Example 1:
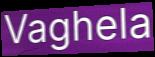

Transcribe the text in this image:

Vaghela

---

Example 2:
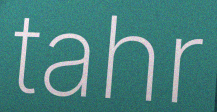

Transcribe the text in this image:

tahr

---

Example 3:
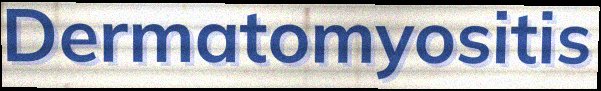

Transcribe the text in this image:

Dermatomyositis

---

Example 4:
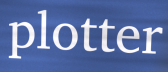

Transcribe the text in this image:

plotter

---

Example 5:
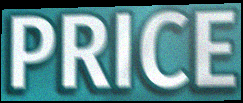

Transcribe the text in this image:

PRICE